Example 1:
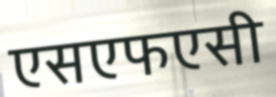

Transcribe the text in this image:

एसएफएसी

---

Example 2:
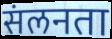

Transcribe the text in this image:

संलनता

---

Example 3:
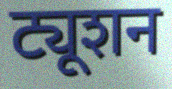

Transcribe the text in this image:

ट्यूशन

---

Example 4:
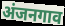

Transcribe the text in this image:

अंजनगाव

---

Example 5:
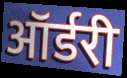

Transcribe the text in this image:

ऑर्डरी